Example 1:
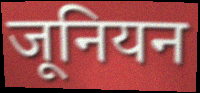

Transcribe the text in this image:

जूनियन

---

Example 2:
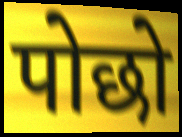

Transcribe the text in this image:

पोछो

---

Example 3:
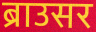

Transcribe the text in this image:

ब्राउसर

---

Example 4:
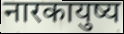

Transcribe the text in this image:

नारकायुष्य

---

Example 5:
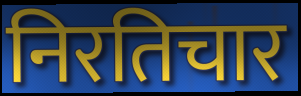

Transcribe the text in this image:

निरतिचार